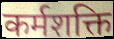
कर्मशक्ति